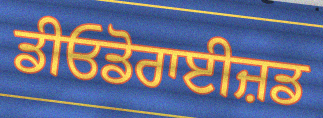
ਡੀਓਡੋਰਾਈਜ਼ਡ